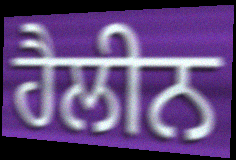
ਹੈਲੀਨ